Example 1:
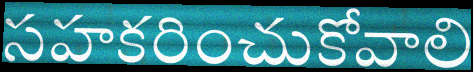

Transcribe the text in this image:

సహకరించుకోవాలి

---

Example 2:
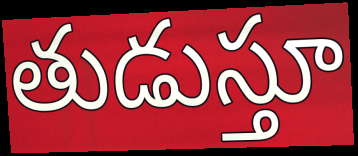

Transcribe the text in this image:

తుడుస్తూ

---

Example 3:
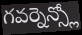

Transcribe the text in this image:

గవర్నెన్స్లో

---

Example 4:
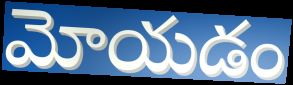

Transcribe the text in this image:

మోయడం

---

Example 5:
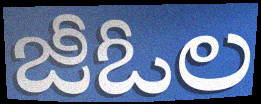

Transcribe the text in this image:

జీఓల